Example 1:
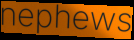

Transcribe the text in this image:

nephews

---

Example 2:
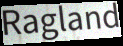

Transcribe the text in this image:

Ragland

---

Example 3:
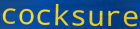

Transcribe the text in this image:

cocksure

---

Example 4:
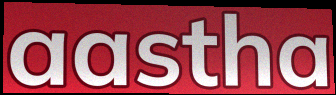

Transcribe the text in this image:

aastha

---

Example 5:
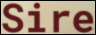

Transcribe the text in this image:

Sire